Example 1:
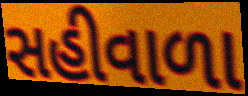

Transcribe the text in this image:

સહીવાળા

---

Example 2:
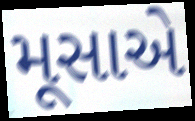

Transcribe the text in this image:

મૂસાએ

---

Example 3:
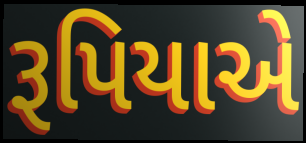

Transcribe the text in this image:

રૂપિયાએ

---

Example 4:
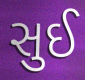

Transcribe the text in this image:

સુઈ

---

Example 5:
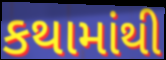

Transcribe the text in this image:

કથામાંથી